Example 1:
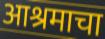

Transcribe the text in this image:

आश्रमाचा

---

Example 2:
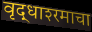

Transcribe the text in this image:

वृद्धाश्रमाचा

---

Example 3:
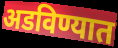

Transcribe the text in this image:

अडविण्यात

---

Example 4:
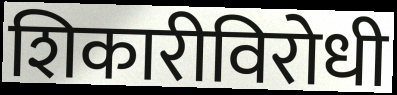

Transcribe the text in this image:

शिकारीविरोधी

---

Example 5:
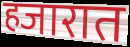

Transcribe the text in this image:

हजारात